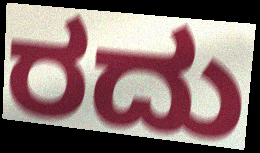
ರದು